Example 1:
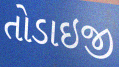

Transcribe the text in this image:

તોડાઇજી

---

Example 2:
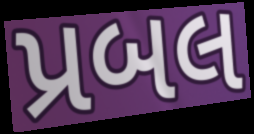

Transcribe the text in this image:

પ્રબલ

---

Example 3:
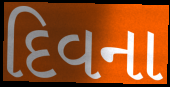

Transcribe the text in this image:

દિવના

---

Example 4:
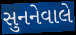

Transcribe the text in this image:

સુનનેવાલે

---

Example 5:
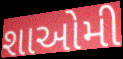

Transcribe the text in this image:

શાઓમી